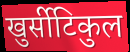
खुर्सीटिकुल